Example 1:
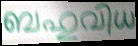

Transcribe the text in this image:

ബഹുവിധ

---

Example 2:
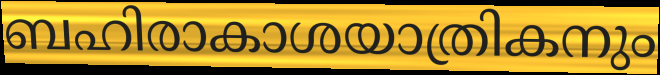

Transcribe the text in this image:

ബഹിരാകാശയാത്രികനും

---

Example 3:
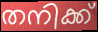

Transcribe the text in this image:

തനിക്ക്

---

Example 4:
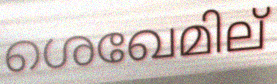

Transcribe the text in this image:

ശെഖേമില്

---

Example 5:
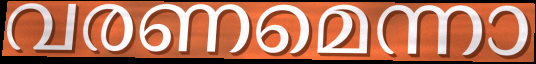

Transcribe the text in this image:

വരണമെന്നാ